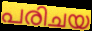
പരിചയ